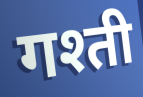
गश्ती